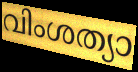
വിംശത്യാ